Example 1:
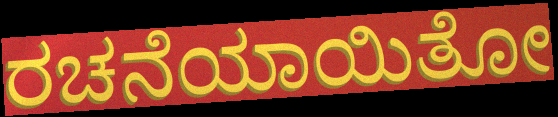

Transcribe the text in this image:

ರಚನೆಯಾಯಿತೋ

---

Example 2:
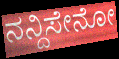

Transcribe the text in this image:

ನನ್ದಿಸೇನೋ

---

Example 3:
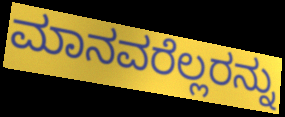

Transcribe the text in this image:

ಮಾನವರೆಲ್ಲರನ್ನು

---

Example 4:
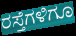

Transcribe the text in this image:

ರಸ್ತೆಗಳಿಗೂ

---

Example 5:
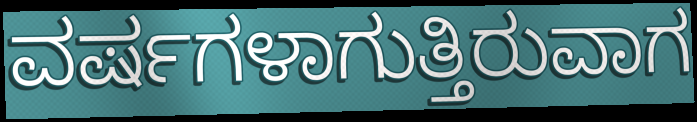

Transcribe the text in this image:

ವರ್ಷಗಳಾಗುತ್ತಿರುವಾಗ